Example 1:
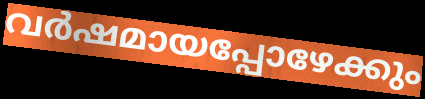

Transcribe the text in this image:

വർഷമായപ്പോഴേക്കും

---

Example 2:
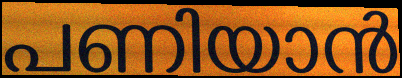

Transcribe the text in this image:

പണിയാൻ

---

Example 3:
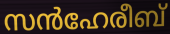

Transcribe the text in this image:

സൻഹേരീബ്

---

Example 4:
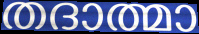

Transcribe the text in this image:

തദാത്മാ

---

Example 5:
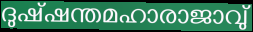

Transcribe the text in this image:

ദുഷ്ഷന്തമഹാരാജാവു്